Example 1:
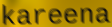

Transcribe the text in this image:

kareena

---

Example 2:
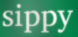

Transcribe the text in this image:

sippy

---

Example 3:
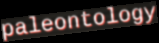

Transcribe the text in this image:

paleontology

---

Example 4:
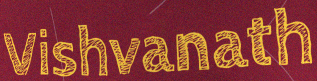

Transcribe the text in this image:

Vishvanath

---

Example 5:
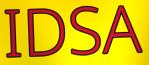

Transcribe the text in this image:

IDSA